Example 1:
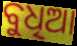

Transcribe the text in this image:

ବୁଧିଆ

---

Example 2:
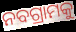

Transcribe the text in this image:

ନବଗ୍ରାମକୁ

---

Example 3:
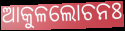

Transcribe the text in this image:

ଆକୁଳଲୋଚନଃ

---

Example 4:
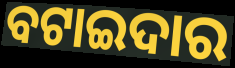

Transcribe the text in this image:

ବଟାଇଦାର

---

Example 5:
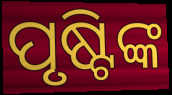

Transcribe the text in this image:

ପୃଷ୍ଟିଙ୍କ